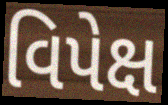
વિપેક્ષ